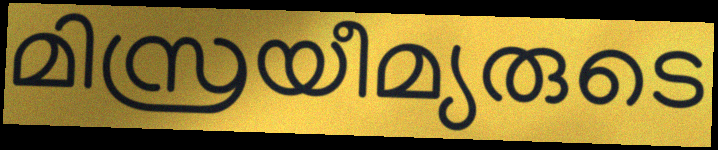
മിസ്രയീമ്യരുടെ